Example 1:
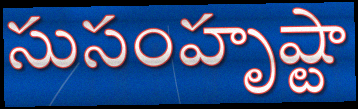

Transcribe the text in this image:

సుసంహృష్టా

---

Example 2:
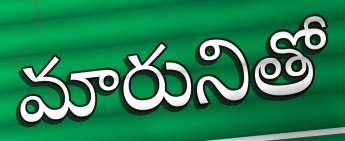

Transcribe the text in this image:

మారునితో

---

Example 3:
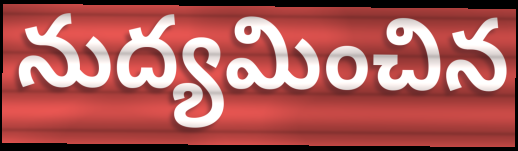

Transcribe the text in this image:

నుద్యమించిన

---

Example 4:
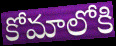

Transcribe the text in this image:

కోమాలోకి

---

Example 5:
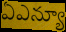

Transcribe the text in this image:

ఏఎన్యూ